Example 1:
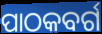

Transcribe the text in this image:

ପାଠକବର୍ଗ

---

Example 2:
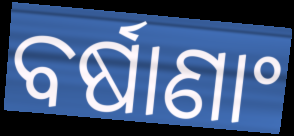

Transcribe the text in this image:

ବର୍ଷାଣାଂ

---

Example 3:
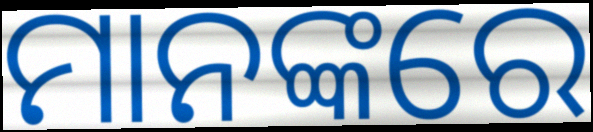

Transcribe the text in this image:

ମାନଙ୍କରେ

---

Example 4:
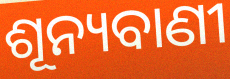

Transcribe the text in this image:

ଶୂନ୍ୟବାଣୀ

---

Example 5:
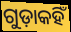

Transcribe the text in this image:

ଗୁଡ଼ାକହିଁ